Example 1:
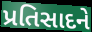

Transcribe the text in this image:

પ્રતિસાદને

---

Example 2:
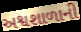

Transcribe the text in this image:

અશ્વશાળાની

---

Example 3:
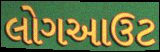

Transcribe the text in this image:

લોગઆઉટ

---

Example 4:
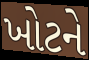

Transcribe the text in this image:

ખોટને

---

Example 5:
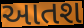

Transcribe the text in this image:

આતશ